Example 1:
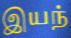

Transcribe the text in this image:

இயந்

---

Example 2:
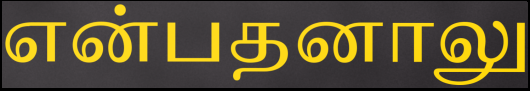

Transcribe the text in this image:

என்பதனாலு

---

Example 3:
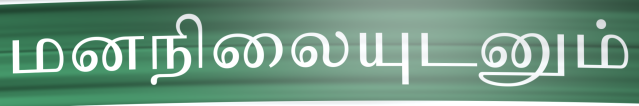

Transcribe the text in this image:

மனநிலையுடனும்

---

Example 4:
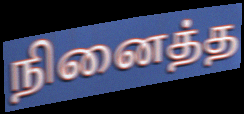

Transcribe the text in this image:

நினைத்த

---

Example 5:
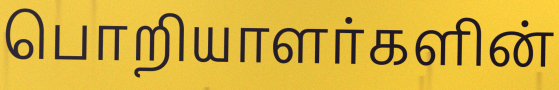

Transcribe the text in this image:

பொறியாளர்களின்